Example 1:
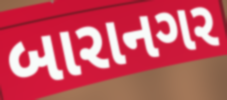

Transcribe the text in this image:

બારાનગર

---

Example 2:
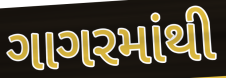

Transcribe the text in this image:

ગાગરમાંથી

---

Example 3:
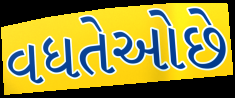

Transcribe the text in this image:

વધતેઓછે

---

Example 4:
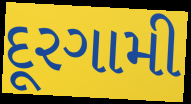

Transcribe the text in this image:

દૂરગામી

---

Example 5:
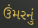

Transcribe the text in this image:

ઉંમરનું